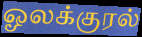
ஓலக்குரல்